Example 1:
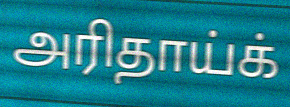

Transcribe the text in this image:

அரிதாய்க்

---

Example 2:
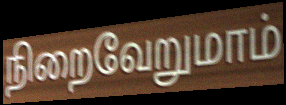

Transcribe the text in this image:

நிறைவேறுமாம்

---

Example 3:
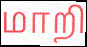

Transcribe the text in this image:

மாறி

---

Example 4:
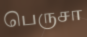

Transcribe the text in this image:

பெருசா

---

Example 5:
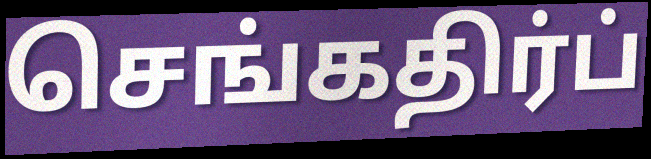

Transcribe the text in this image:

செங்கதிர்ப்